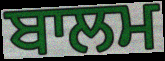
ਬਾਲਮ